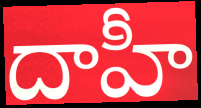
దాహీ